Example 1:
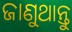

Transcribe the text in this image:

ଜାଣୁଥାନ୍ତୁ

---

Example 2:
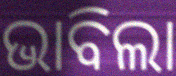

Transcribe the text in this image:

ଭାବିଲା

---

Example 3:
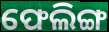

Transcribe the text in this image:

ଫେଲିଙ୍ଗ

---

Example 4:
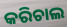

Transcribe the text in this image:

କରିଚାଲ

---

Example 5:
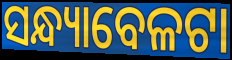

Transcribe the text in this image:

ସନ୍ଧ୍ୟାବେଳଟା